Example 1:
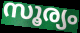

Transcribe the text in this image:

സൂര്യം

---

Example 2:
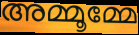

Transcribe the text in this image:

അമ്മൂമ്മേ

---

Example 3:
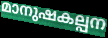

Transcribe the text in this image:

മാനുഷകല്പന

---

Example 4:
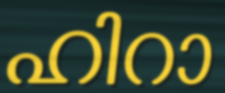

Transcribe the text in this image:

ഹിറാ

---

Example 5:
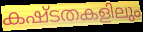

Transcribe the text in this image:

കഷ്ടതകളിലും